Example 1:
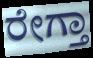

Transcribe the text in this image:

ರೇಗ್ತಾ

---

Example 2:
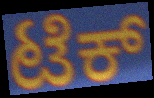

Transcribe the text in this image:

ಟೆಕ್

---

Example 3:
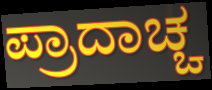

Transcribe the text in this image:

ಪ್ರಾದಾಚ್ಚ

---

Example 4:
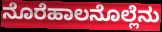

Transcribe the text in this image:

ನೊರೆಹಾಲನೊಲ್ಲೆನು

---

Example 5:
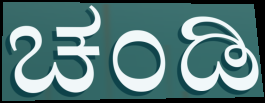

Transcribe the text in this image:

ಚಂಡಿ